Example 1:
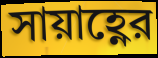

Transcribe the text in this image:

সায়াহ্ণের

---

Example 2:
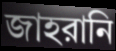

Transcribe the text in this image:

জাহরানি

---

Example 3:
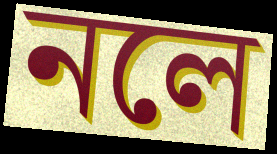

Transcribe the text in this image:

নলে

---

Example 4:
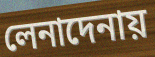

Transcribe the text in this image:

লেনাদেনায়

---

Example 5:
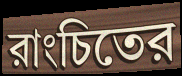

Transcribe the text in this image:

রাংচিতের